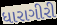
ધારાગીરી